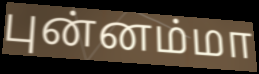
புன்னம்மா